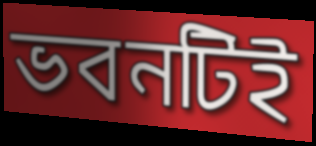
ভবনটিই